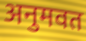
अनुमवत